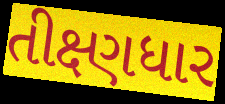
તીક્ષ્ણધાર